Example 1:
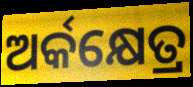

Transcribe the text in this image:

ଅର୍କକ୍ଷେତ୍ର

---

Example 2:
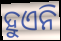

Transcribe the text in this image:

ହୁଏନି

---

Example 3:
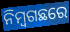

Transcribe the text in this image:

ନିମ୍ବଗଛରେ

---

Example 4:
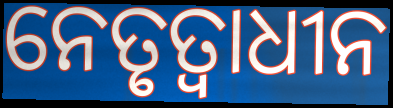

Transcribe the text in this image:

ନେତୃତ୍ୱାଧୀନ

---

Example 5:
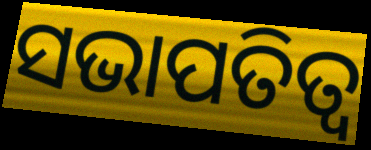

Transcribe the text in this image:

ସଭାପତିତ୍ବ